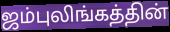
ஜம்புலிங்கத்தின்